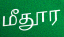
மீதூர